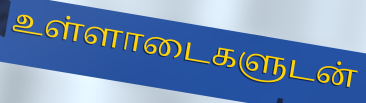
உள்ளாடைகளுடன்